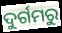
ଦୁର୍ଗମରୁ